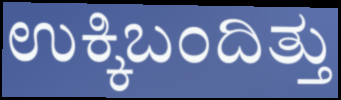
ಉಕ್ಕಿಬಂದಿತ್ತು